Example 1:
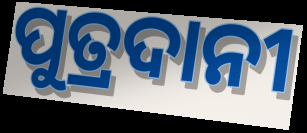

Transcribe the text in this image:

ପୁତ୍ରଦାନୀ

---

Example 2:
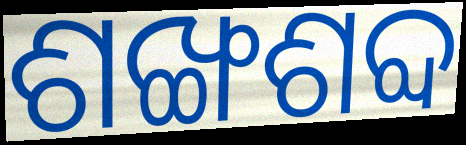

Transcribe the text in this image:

ଶଙ୍ଖଶବ୍ଦ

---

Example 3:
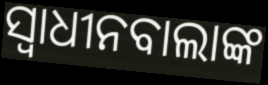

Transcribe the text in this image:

ସ୍ୱାଧୀନବାଲାଙ୍କ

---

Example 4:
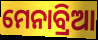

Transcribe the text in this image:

ମେନାବ୍ରିଆ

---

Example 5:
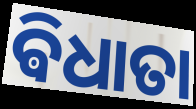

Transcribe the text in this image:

ଵିଧାତା